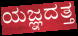
ಯಜ್ಞದತ್ತ